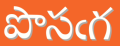
పొసఁగ